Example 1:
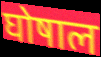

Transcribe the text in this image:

घोषाल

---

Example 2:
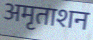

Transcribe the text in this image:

अमृताशन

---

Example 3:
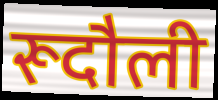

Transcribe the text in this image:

रूदौली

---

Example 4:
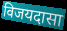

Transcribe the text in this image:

विजयदासा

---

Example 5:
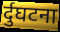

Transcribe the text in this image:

र्दुघटना